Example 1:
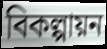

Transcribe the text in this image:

বিকল্পায়ন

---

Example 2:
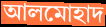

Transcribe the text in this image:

আলমোহাদ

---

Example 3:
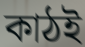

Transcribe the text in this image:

কাঠই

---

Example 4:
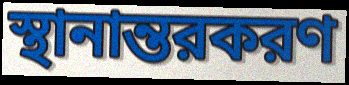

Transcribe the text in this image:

স্থানান্তরকরণ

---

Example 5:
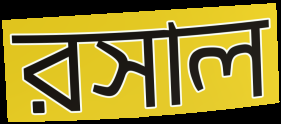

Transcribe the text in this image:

রসাল